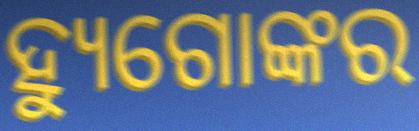
ହ୍ୟୁଗୋଙ୍କର